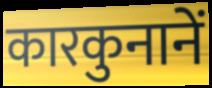
कारकुनानें